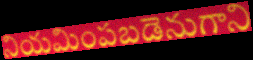
నియమింపబడెనుగాని